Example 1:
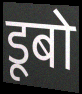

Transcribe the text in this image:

डूबो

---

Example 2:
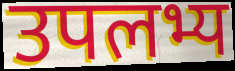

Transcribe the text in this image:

उपलभ्य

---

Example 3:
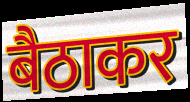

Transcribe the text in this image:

बैठाकर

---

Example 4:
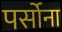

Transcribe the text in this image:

पर्सोना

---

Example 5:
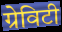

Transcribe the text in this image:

ग्रेविटी